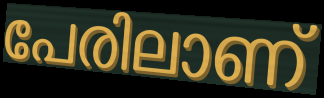
പേരിലാണ്